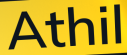
Athil